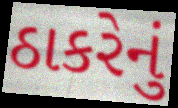
ઠાકરેનું